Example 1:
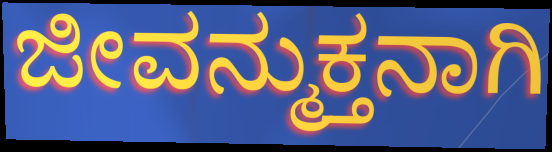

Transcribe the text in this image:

ಜೀವನ್ಮುಕ್ತನಾಗಿ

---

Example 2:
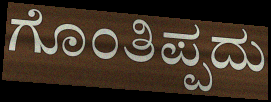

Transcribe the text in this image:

ಗೊಂತಿಪ್ಪದು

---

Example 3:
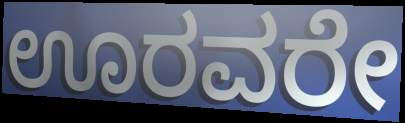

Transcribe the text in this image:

ಊರವರೇ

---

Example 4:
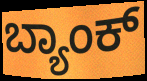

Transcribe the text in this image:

ಬ್ಯಾಂಕ್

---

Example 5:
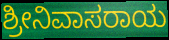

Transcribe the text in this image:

ಶ್ರೀನಿವಾಸರಾಯ